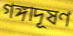
গঙ্গাদূষণ